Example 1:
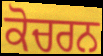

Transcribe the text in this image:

ਕੋਚਰਨ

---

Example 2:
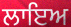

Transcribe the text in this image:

ਲਾਇਅ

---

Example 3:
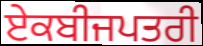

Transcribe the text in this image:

ਏਕਬੀਜਪਤਰੀ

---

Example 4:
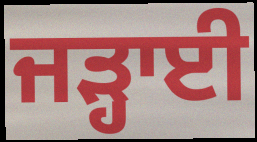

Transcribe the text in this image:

ਜੜ੍ਹਾਈ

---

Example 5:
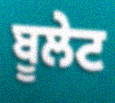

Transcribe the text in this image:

ਬੂਲੇਟ